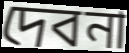
দেবনা